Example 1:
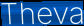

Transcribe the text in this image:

Theva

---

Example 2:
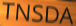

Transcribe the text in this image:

TNSDA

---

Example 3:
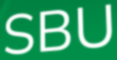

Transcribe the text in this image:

SBU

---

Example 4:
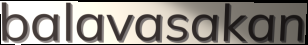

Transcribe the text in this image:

balavasakan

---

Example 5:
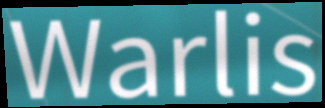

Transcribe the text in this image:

Warlis